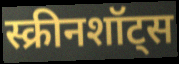
स्क्रीनशॉट्स